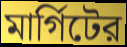
মার্গিটের